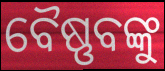
ବୈଷ୍ଣବଙ୍କୁ